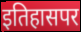
इतिहासपर